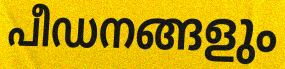
പീഡനങ്ങളും